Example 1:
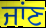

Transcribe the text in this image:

ਜਾਂਣ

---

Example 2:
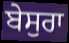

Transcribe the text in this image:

ਬੇਸੁਰਾ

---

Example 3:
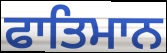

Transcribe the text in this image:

ਫਾਤਿਮਾਨ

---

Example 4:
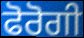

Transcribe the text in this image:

ਫੋਰੋਗੀ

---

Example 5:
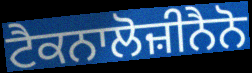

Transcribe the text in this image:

ਟੈਕਨਾਲੋਜ਼ੀਨੈਨੋ